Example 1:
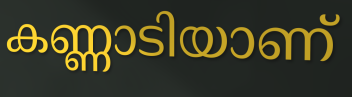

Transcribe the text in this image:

കണ്ണാടിയാണ്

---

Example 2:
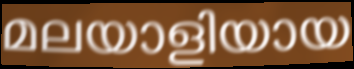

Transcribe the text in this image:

മലയാളിയായ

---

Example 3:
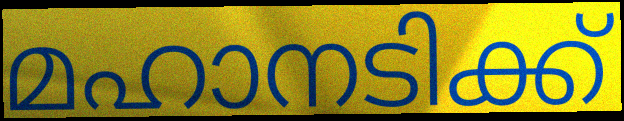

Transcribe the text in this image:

മഹാനടിക്ക്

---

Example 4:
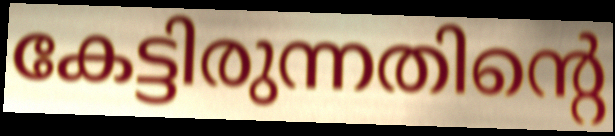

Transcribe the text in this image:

കേട്ടിരുന്നതിന്റെ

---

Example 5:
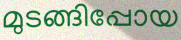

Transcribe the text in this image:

മുടങ്ങിപ്പോയ